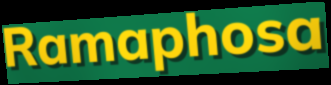
Ramaphosa